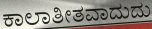
ಕಾಲಾತೀತವಾದುದು